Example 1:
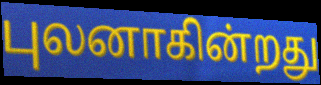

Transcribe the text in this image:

புலனாகின்றது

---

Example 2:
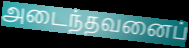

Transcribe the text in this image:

அடைந்தவனைப்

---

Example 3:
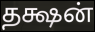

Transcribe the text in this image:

தக்ஷன்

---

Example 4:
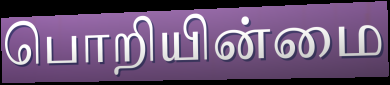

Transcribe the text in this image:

பொறியின்மை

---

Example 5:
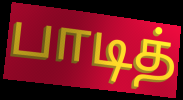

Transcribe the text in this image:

பாடித்